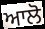
ਆਲੋ